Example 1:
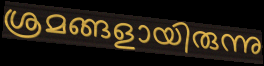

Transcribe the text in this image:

ശ്രമങ്ങളായിരുന്നു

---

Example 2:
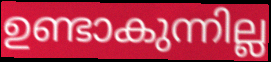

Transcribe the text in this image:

ഉണ്ടാകുന്നില്ല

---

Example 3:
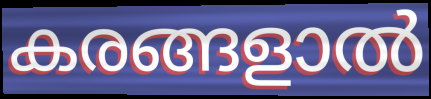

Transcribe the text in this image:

കരങ്ങളാൽ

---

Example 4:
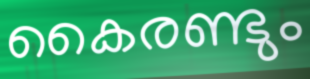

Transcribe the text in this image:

കൈരണ്ടും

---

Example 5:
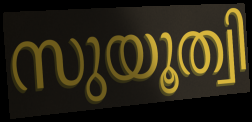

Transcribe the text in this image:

സുയൂത്വി